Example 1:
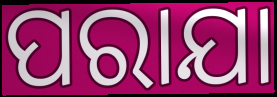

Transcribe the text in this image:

ପରାଯା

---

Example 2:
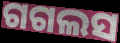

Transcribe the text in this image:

ଗଗଲସ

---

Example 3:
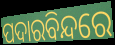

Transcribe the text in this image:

ପଦାରବିନ୍ଦରେ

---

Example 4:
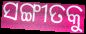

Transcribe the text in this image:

ସଙ୍ଗୀତକୁ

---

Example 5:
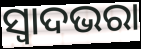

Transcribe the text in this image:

ସ୍ଵାଦଭରା